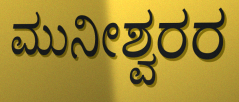
ಮುನೀಶ್ವರರ